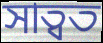
সাত্বত